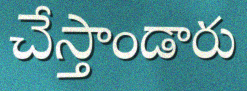
చేస్తాండారు